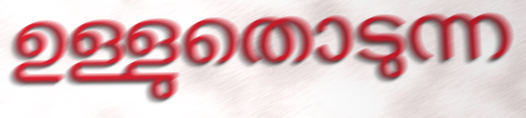
ഉള്ളുതൊടുന്ന